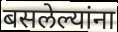
बसलेल्यांना